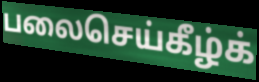
பலைசெய்கீழ்க்